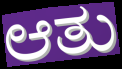
ಆತು